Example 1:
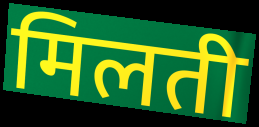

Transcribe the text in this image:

मिलती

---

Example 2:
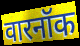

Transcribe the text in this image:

वारनॉक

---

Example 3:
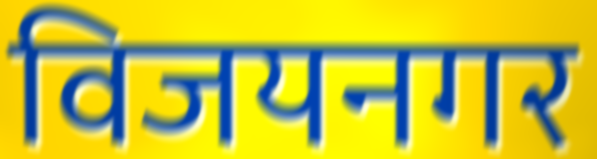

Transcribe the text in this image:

विजयनगर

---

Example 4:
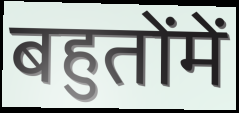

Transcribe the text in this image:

बहुतोंमें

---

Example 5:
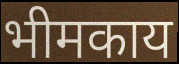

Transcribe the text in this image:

भीमकाय